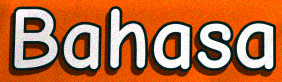
Bahasa